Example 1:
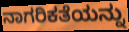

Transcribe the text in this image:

ನಾಗರಿಕತೆಯನ್ನು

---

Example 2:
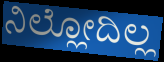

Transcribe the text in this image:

ನಿಲ್ಲೋದಿಲ್ಲ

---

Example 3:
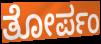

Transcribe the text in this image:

ತೋರ್ಪಂ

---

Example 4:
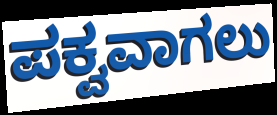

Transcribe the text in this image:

ಪಕ್ವವಾಗಲು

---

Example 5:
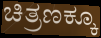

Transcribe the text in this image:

ಚಿತ್ರಣಕ್ಕೂ